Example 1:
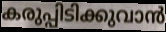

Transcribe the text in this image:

കരുപ്പിടിക്കുവാൻ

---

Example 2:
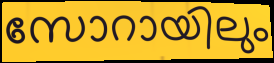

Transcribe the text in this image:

സോറായിലും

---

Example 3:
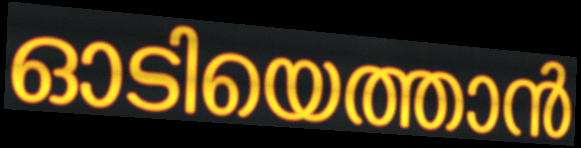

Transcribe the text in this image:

ഓടിയെത്താൻ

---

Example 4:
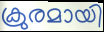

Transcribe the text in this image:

ക്രുരമായി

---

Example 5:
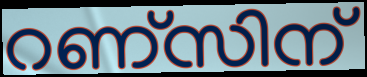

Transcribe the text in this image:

റണ്സിന്